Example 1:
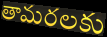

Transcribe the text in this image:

తామరలకు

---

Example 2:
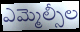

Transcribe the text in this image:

ఎమ్మెల్సీల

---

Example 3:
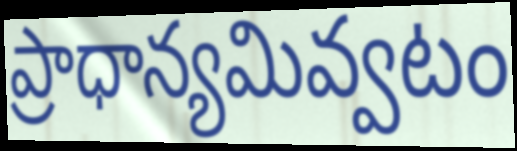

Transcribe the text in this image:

ప్రాధాన్యమివ్వటం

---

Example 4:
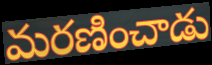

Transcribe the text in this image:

మరణించాడు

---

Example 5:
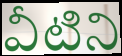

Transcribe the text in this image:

వీటిని